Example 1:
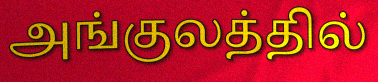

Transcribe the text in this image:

அங்குலத்தில்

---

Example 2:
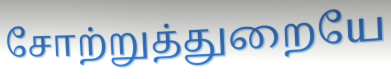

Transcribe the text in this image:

சோற்றுத்துறையே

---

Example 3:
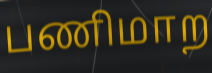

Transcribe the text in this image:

பணிமாற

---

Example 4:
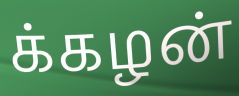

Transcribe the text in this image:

க்கழன்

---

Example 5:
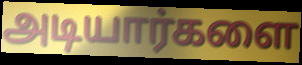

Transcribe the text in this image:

அடியார்களை